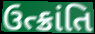
ઉત્ક્રાંતિ